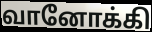
வானோக்கி